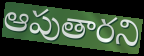
ఆపుతారని